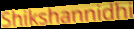
Shikshannidhi